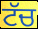
ਟੱਚ